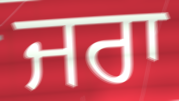
ਜਰਾ